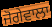
ਜੋਗੇਵਾਲਾ